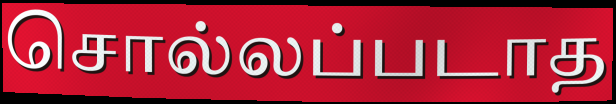
சொல்லப்படாத